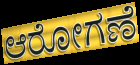
ಆರೋಗಣೆ